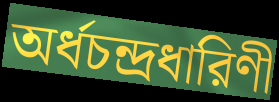
অর্ধচন্দ্রধারিণী